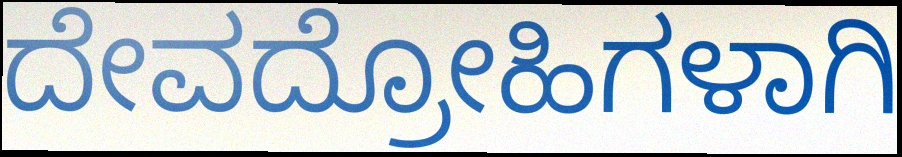
ದೇವದ್ರೋಹಿಗಳಾಗಿ